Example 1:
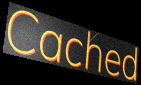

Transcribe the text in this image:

Cached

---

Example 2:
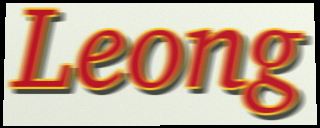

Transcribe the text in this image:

Leong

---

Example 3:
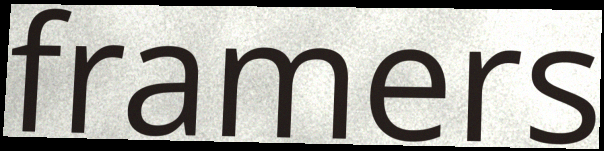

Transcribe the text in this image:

framers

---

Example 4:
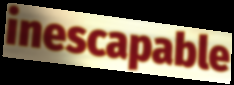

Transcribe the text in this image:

inescapable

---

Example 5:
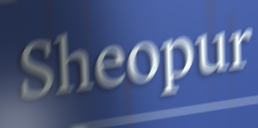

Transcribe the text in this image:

Sheopur